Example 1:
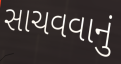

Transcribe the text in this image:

સાચવવાનું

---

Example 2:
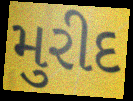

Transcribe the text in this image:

મુરીદ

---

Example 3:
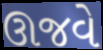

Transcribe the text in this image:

ઊજવે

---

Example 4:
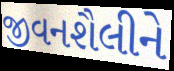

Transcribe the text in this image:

જીવનશૈલીને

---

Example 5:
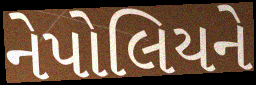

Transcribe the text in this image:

નેપોલિયને